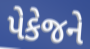
પેકેજને